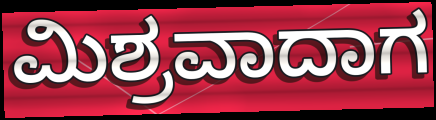
ಮಿಶ್ರವಾದಾಗ